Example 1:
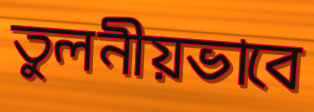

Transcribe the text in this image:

তুলনীয়ভাবে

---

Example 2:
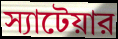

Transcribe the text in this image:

স্যাটেয়ার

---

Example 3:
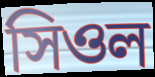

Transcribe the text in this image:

সিওল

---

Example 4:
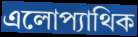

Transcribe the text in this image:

এলোপ্যাথিক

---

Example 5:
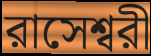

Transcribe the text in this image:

রাসেশ্বরী